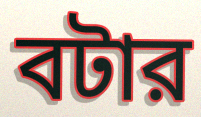
বটার